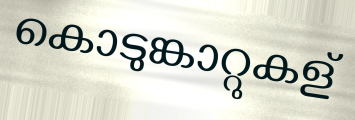
കൊടുങ്കാറ്റുകള്